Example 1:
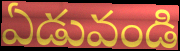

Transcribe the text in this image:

ఏడువండి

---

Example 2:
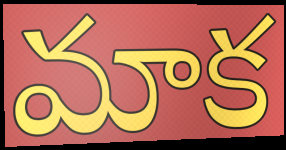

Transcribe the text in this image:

మాక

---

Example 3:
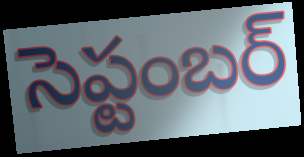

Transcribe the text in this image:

సెప్టంబర్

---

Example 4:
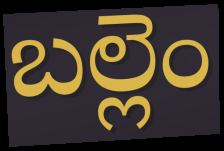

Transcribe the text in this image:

బల్లెం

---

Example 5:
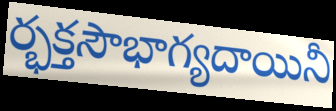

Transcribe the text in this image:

ర్భక్తసౌభాగ్యదాయినీ